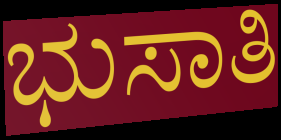
ಭುಸಾತಿ